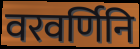
वरवर्णिनि